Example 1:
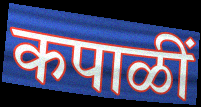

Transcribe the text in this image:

कपाळीं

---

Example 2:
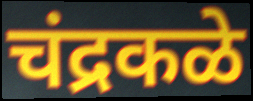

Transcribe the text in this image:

चंद्रकळे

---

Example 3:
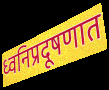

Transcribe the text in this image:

ध्वनिप्रदूषणात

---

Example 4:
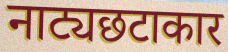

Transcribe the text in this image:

नाट्यछटाकार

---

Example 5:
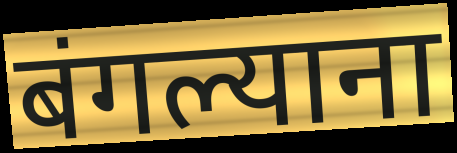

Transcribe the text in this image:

बंगल्याना